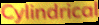
Cylindrical